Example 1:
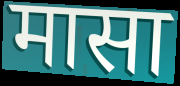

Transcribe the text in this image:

मासा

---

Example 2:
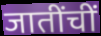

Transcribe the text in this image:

जातींचीं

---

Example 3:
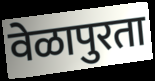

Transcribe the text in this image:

वेळापुरता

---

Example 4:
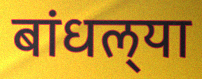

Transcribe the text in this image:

बांधल्या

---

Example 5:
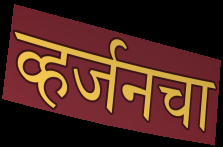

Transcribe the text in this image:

व्हर्जनचा